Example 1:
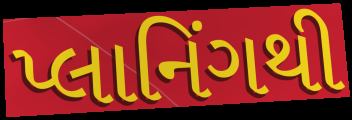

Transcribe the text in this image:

પ્લાનિંગથી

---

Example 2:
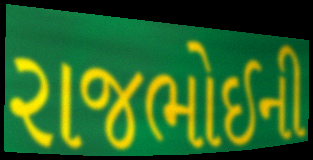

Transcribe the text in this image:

રાજભોઈની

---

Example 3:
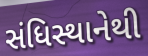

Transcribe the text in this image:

સંધિસ્થાનેથી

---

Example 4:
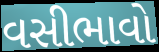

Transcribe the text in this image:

વસીભાવો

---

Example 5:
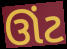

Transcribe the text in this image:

ઊંટ